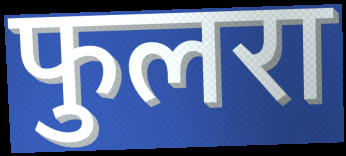
फुलरा